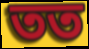
তত